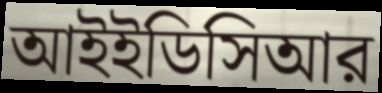
আইইডিসিআর